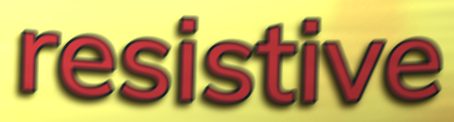
resistive